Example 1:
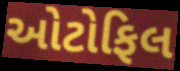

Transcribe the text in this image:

ઓટોફિલ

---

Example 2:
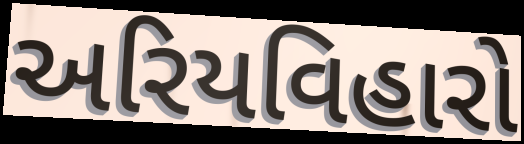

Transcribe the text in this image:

અરિયવિહારો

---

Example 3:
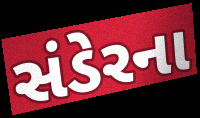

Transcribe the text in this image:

સંડેરના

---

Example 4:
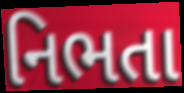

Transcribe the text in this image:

નિભતા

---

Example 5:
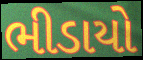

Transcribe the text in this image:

ભીડાયો